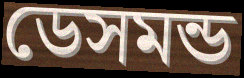
ডেসমন্ড